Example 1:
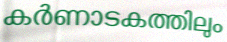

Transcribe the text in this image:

കർണാടകത്തിലും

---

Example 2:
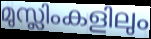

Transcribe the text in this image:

മുസ്ലിംകളിലും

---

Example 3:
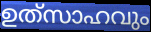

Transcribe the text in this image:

ഉത്‌സാഹവും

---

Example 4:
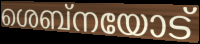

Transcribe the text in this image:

ശെബ്നയോട്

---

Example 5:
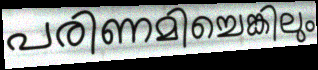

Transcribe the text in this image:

പരിണമിച്ചെങ്കിലും